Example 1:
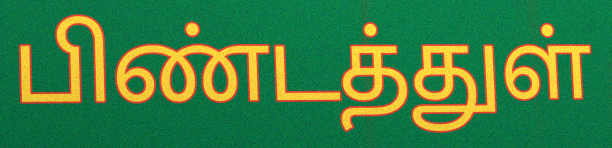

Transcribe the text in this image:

பிண்டத்துள்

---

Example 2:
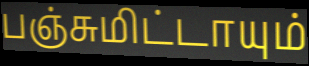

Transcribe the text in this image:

பஞ்சுமிட்டாயும்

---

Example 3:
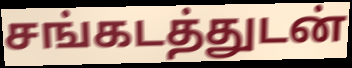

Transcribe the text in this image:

சங்கடத்துடன்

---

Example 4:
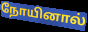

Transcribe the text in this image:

நோயினால்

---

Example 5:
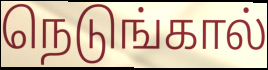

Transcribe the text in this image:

நெடுங்கால்